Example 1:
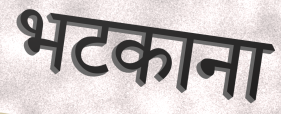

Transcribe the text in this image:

भटकाना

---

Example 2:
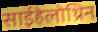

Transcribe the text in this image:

साईहेलोथ्रिन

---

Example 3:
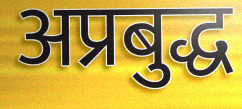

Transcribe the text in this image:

अप्रबुद्ध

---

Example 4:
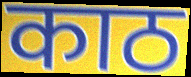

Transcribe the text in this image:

काठ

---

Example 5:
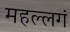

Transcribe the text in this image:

महल्लगं